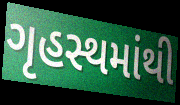
ગૃહસ્થમાંથી